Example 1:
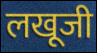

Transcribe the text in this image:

लखूजी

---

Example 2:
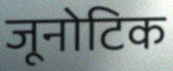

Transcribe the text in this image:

जूनोटिक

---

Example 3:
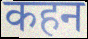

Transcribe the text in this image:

कहन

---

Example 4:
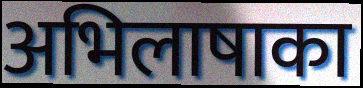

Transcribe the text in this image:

अभिलाषाका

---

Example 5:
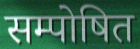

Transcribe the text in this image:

सम्पोषित